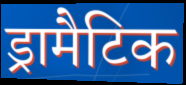
ड्रामैटिक